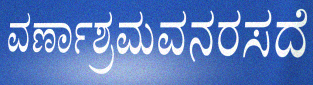
ವರ್ಣಾಶ್ರಮವನರಸದೆ